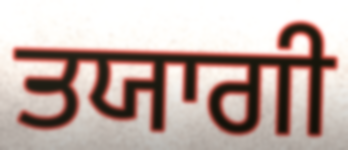
ਤਯਾਗੀ